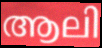
ആലി